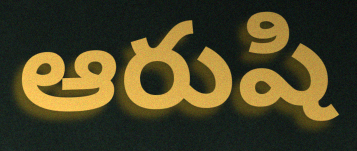
ఆరుషి